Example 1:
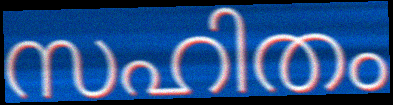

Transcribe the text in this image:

സഹിതം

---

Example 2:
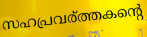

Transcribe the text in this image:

സഹപ്രവര്ത്തകന്റെ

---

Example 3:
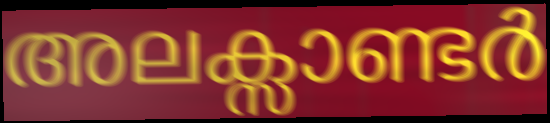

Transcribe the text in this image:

അലക്സാണ്ടർ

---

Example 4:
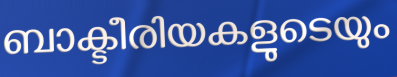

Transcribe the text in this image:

ബാക്ടീരിയകളുടെയും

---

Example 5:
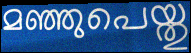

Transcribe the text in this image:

മഞ്ഞുപെയ്തു